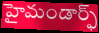
హైమండార్ఫ్